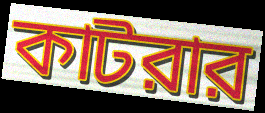
কাটরার